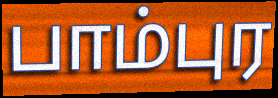
பாம்புர